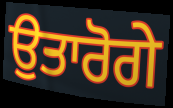
ਉਤਾਰੋਗੇ